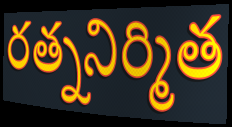
రత్ననిర్మిత